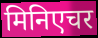
मिनिएचर